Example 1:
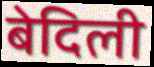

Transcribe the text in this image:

बेदिली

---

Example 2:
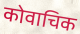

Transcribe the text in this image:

कोवाचिक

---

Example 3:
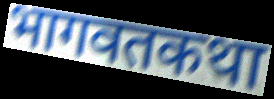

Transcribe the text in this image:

भागवतकथा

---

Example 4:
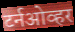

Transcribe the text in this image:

टर्नओव्हर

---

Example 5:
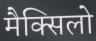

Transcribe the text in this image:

मैक्सिलो